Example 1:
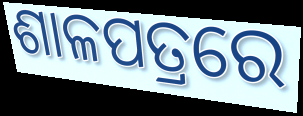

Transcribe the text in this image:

ଶାଳପତ୍ରରେ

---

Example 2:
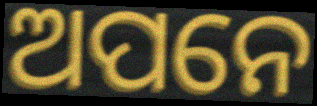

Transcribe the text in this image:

ଅପନେ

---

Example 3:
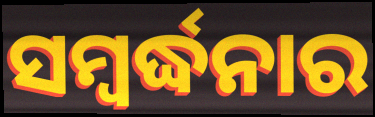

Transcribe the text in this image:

ସମ୍ବର୍ଦ୍ଧନାର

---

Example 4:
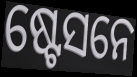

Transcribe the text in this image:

ଷ୍ଟେସନେ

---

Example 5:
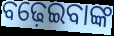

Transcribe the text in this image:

ବଢ଼େଇବାଙ୍କ